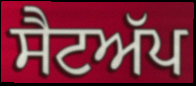
ਸੈਟਅੱਪ